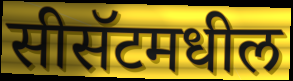
सीसॅटमधील